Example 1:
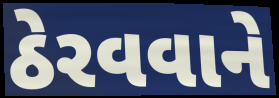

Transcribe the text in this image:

ઠેરવવાને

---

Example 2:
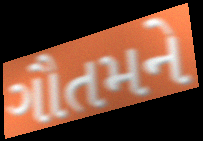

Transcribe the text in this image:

ગૌતમને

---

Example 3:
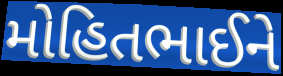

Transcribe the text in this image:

મોહિતભાઈને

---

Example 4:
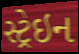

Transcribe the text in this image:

સ્ટ્રેઇન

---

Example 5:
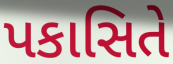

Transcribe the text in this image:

પકાસિતે